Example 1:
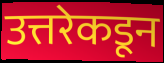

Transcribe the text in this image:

उत्तरेकडून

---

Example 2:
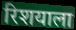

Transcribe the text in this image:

रिशयाला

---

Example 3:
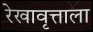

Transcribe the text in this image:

रेखावृत्ताला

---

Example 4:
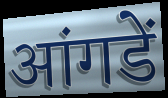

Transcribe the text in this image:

आंगडें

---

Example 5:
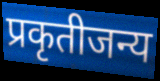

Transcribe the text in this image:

प्रकृतीजन्य